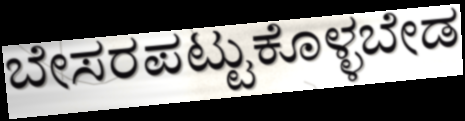
ಬೇಸರಪಟ್ಟುಕೊಳ್ಳಬೇಡ